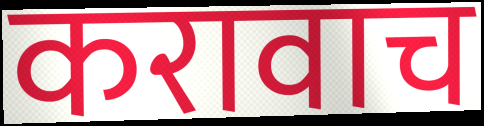
करावाच